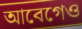
আবেগেও